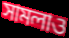
সামলাও